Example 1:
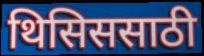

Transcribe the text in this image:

थिसिससाठी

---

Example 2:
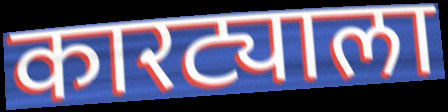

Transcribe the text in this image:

कारट्याला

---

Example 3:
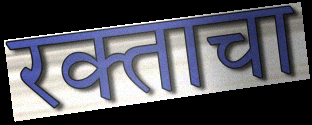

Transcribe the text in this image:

रक्‍ताचा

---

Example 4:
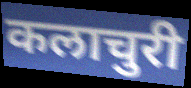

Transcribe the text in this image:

कलाचुरी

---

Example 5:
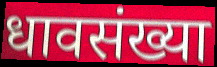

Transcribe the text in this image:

धावसंख्या